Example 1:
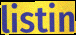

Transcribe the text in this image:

listin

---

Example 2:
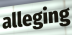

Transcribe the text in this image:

alleging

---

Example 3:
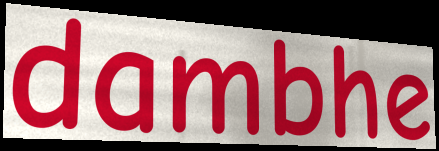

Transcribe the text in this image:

dambhe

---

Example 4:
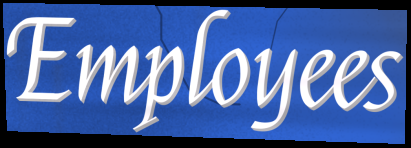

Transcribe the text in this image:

Employees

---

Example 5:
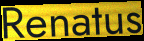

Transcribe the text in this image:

Renatus